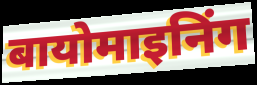
बायोमाइनिंग